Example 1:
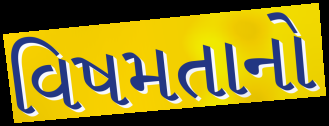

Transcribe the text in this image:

વિષમતાનો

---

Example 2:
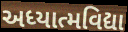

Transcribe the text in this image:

અધ્યાત્મવિદ્યા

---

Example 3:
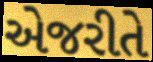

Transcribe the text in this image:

એજરીતે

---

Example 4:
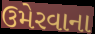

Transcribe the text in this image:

ઉમેરવાના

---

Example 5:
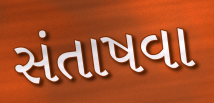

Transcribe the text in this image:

સંતાષવા